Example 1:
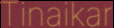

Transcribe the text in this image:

Tinaikar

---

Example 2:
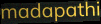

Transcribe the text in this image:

madapathi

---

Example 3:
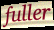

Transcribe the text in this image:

fuller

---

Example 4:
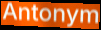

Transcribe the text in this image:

Antonym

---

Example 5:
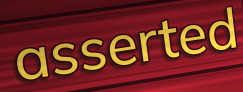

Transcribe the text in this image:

asserted